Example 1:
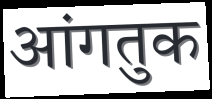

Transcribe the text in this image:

आंगतुक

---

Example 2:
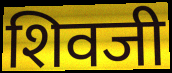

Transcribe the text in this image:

शिवजी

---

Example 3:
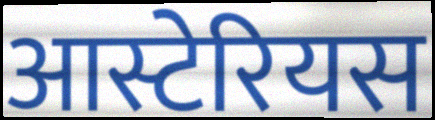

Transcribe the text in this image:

आस्टेरियस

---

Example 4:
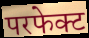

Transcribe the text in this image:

परफेक्ट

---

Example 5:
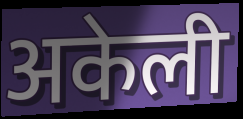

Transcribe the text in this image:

अकेली